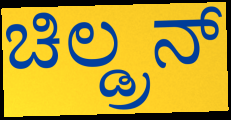
ಚಿಲ್ಡ್ರನ್